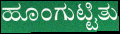
ಹೂಂಗುಟ್ಟಿತು